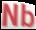
Nb